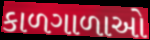
કાળગાળાઓ